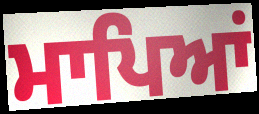
ਮਾਪਿਆਂ